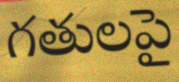
గతులపై